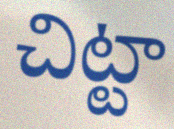
చిట్టా